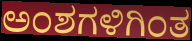
ಅಂಶಗಳಿಗಿಂತ